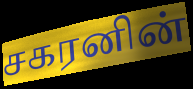
சகரனின்